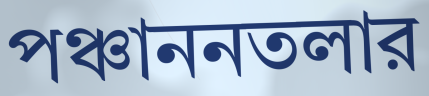
পঞ্চাননতলার